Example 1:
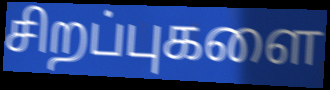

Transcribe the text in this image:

சிறப்புகளை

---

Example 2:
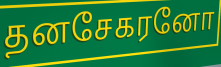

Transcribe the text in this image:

தனசேகரனோ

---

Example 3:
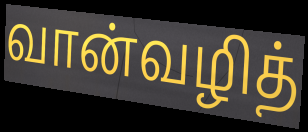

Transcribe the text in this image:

வான்வழித்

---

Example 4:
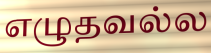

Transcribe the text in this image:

எழுதவல்ல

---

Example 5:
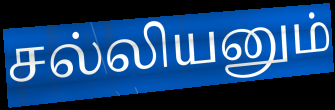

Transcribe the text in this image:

சல்லியனும்